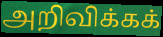
அறிவிக்கக்